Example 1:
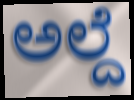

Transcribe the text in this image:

ಅಲ್ದೆ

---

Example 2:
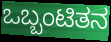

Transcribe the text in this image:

ಒಬ್ಬಂಟಿತನ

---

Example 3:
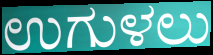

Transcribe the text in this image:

ಉಗುಳಲು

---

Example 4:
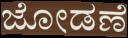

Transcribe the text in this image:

ಜೋಡಣೆ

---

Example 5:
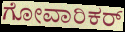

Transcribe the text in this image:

ಗೋವಾರಿಕರ್